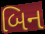
બિન